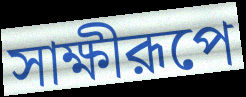
সাক্ষীরূপে